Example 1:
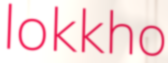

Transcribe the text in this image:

lokkho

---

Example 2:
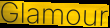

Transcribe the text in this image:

Glamour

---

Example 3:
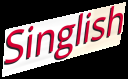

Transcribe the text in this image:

Singlish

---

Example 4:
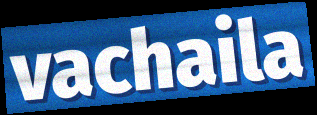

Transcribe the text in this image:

vachaila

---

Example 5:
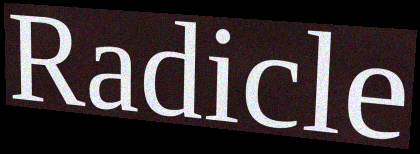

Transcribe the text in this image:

Radicle